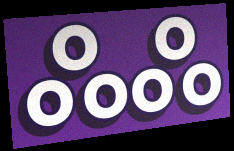
ஃஃ